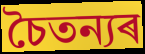
চৈতন্যৰ